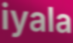
iyala